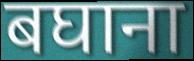
बघाना